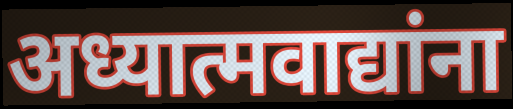
अध्यात्मवाद्यांना